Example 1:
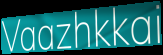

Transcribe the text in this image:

Vaazhkkai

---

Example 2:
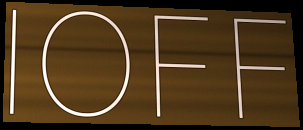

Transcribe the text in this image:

IOFF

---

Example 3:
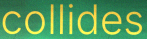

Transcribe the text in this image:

collides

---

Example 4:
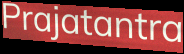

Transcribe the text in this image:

Prajatantra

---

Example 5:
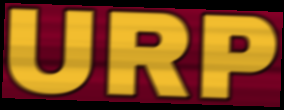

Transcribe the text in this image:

URP